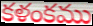
కళంకము